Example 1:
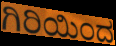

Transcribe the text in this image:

ಗಿರಿಯಿಂದ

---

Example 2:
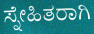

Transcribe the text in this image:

ಸ್ನೇಹಿತರಾಗಿ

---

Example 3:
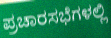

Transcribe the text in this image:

ಪ್ರಚಾರಸಭೆಗಳಲ್ಲಿ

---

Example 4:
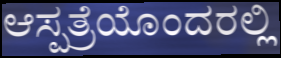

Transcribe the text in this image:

ಆಸ್ಪತ್ರೆಯೊಂದರಲ್ಲಿ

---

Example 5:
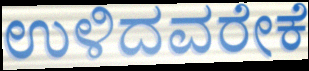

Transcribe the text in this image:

ಉಳಿದವರೇಕೆ